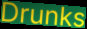
Drunks